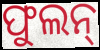
ଫୁଲନ୍